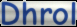
Dhrol